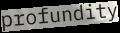
profundity